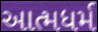
આત્મધર્મ